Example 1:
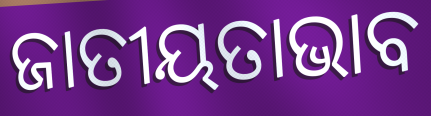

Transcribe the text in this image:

ଜାତୀୟତାଭାବ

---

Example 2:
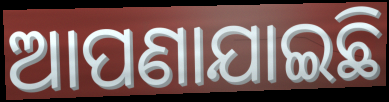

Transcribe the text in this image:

ଆପଣାଯାଇଛି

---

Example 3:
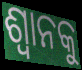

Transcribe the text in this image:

ଶ୍ଵାନକୁ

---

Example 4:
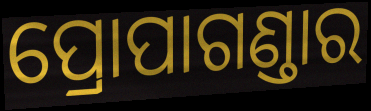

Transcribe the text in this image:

ପ୍ରୋପାଗଣ୍ଡାର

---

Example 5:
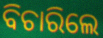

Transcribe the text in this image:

ବିଚାରିଲେ